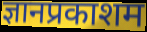
ज्ञानप्रकाशम